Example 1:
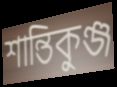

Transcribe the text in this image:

শান্তিকুঞ্জ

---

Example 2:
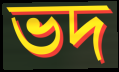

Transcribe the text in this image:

ভদ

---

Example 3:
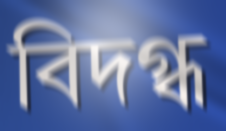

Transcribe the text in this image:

বিদগ্ধ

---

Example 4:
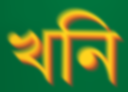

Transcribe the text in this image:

খনি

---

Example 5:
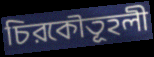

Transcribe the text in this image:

চিরকৌতূহলী